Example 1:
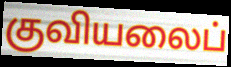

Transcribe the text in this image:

குவியலைப்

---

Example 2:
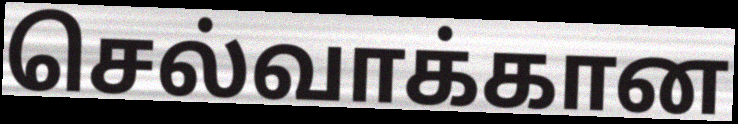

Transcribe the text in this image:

செல்வாக்கான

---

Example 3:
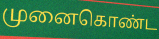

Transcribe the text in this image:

முனைகொண்ட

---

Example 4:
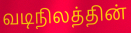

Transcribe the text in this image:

வடிநிலத்தின்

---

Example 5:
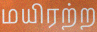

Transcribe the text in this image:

மயிரற்ற